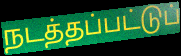
நடத்தப்பட்டுப்